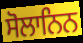
ਸੋਲਾਨਿਨ